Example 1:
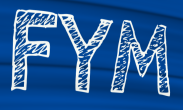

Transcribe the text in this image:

FYM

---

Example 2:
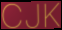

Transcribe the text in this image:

CJK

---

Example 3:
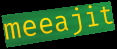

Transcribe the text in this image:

meeajit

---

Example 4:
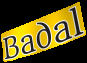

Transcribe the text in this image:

Badal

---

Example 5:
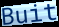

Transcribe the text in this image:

Buit